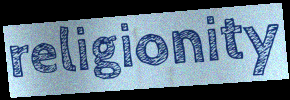
religionity